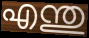
എന്തു